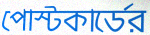
পোস্টকার্ডের